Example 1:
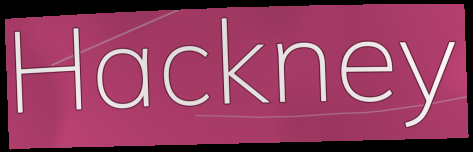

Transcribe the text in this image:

Hackney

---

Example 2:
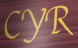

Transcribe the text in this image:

CYR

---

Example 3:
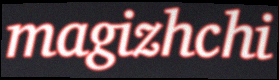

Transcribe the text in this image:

magizhchi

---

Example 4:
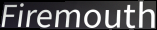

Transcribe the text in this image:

Firemouth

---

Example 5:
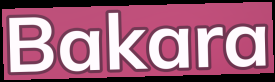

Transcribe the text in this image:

Bakara